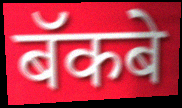
बॅकबे